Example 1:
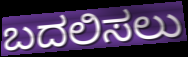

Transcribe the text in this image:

ಬದಲಿಸಲು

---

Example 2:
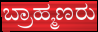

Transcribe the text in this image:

ಬ್ರಾಹ್ಮಣರು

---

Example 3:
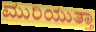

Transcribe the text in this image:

ಮುರಿಯುತ್ತಾ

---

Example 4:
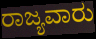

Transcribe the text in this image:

ರಾಜ್ಯವಾರು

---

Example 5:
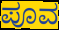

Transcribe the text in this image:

ಪೂವ